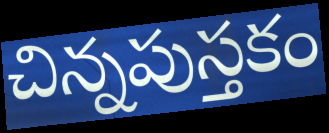
చిన్నపుస్తకం